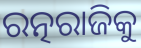
ରତ୍ନରାଜିକୁ